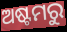
ଅଷ୍ଟମରୁ